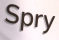
Spry